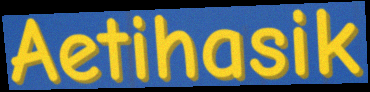
Aetihasik